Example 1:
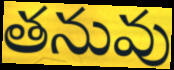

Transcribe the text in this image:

తనువు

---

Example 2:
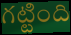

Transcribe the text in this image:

గట్టింది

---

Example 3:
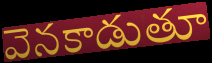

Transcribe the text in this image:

వెనకాడుతూ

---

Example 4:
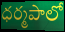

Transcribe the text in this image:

ధర్మపాలో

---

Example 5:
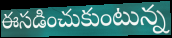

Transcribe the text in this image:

ఈసడించుకుంటున్న